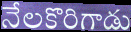
నేలకొరిగాడు